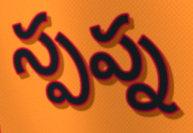
స్పప్న